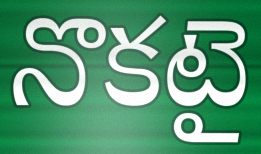
నొకటై